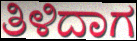
ತಿಳಿದಾಗ